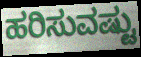
ಹರಿಸುವಷ್ಟು